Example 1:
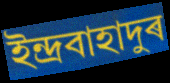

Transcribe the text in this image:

ইন্দ্ৰবাহাদুৰ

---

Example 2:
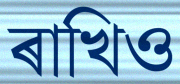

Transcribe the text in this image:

ৰাখিও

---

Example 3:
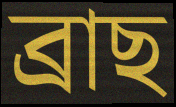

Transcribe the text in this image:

ব্ৰাছ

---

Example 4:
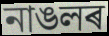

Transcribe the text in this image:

নাঙলৰ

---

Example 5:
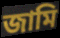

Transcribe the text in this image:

জামি